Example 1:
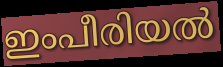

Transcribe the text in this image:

ഇംപീരിയൽ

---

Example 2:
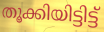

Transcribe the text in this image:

തൂക്കിയിട്ടിട്ട്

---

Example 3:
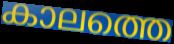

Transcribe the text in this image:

കാലത്തെ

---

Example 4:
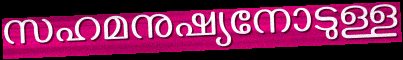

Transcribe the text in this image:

സഹമനുഷ്യനോടുള്ള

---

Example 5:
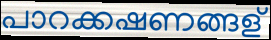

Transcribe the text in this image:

പാറക്കഷണങ്ങള്